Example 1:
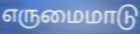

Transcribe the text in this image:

எருமைமாடு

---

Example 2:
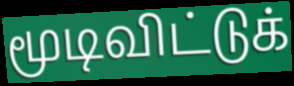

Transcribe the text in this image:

மூடிவிட்டுக்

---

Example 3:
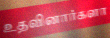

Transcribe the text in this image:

உதவினார்களா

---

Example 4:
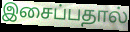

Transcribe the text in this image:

இசைப்பதால்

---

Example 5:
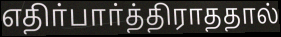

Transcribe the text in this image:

எதிர்பார்த்திராததால்